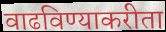
वाढविण्याकरीता